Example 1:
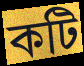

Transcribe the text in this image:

কটি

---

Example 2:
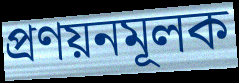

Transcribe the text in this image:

প্রণয়নমূলক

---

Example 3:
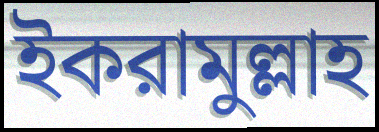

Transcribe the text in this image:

ইকরামুল্লাহ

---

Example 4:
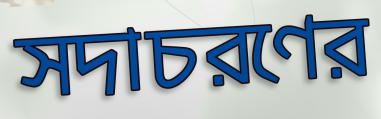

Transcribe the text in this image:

সদাচরণের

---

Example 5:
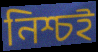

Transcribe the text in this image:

নিশ্চই